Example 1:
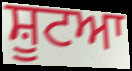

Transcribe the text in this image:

ਸ਼ੂਟਆ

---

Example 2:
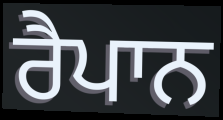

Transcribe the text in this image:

ਰੈਪਾਨ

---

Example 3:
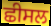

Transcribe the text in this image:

ਛੀਸਲ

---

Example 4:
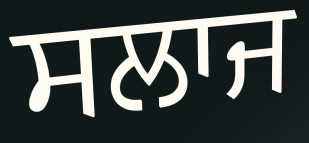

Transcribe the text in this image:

ਸਲਾਜ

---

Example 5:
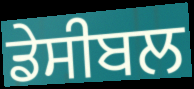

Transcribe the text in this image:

ਡੇਸੀਬਲ